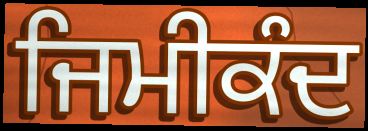
ਜਿਮੀਕੰਦ